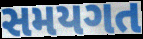
સમયગત